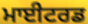
ਮਾਈਟਰਡ